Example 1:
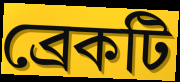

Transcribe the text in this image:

ব্রেকটি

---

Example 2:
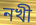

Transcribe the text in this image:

নখী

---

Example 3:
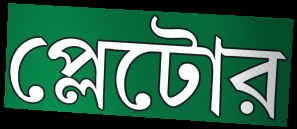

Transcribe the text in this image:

প্লেটোর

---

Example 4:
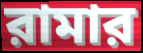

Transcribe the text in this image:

রামার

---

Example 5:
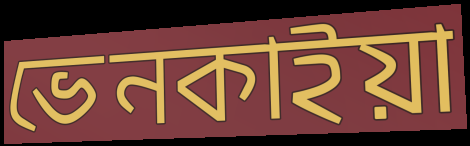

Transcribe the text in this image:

ভেনকাইয়া